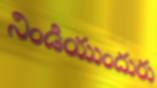
నిండియుందురు